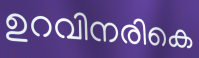
ഉറവിനരികെ